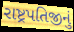
રાષ્ટ્રપતિજીનું